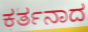
ಕರ್ತನಾದ